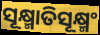
ସୂକ୍ଷ୍ମାତିସୂକ୍ଷ୍ମଂ